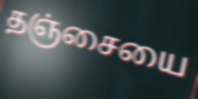
தஞ்சையை